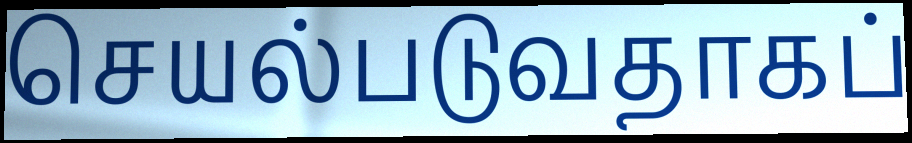
செயல்படுவதாகப்